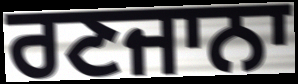
ਰਣਜਾਨਾ